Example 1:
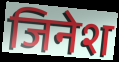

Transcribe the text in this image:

जिनेश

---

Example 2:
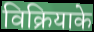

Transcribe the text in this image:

विक्रियाके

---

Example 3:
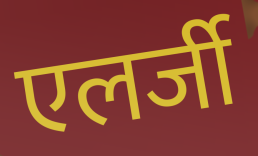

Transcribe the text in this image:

एलर्जी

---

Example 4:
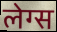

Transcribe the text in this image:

लेग्स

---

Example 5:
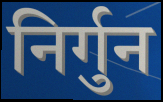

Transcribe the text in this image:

निर्गुन